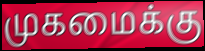
முகமைக்கு